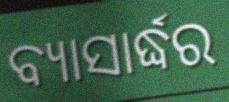
ବ୍ୟାସାର୍ଦ୍ଧର